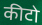
कीटो